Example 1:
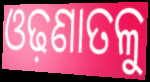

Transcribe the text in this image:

ଓଢ଼ଣାତଳୁ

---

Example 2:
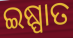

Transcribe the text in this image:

ଇଷ୍ପାତ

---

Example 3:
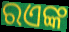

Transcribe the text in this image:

ରଏଙ୍କ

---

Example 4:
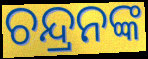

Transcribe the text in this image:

ଚନ୍ଦ୍ରନଙ୍କ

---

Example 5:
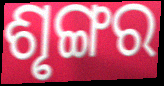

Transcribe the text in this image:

ଶୃଙ୍ଗର